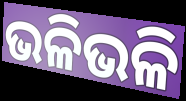
ଭଳିଭଳି